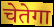
चेतेगा